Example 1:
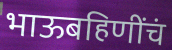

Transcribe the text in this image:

भाऊबहिणींचं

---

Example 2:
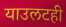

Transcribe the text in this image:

याउलटही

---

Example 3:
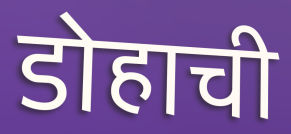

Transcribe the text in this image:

डोहाची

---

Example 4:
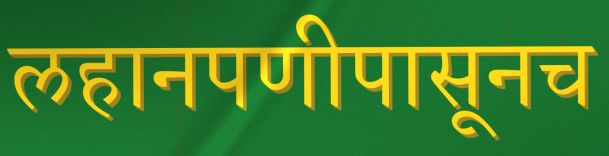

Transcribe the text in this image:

लहानपणीपासूनच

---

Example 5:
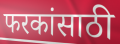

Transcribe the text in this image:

फरकांसाठी